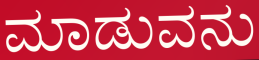
ಮಾಡುವನು